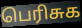
பெரிசுக